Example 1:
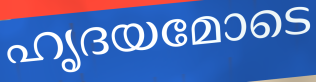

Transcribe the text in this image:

ഹൃദയമോടെ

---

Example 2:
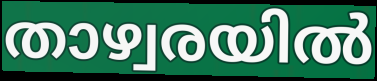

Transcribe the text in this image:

താഴ്വരയിൽ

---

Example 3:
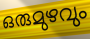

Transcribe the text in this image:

ഒരുമുഴവും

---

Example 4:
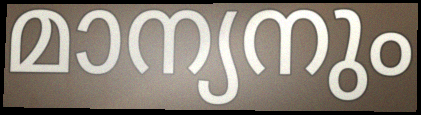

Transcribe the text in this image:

മാന്യനും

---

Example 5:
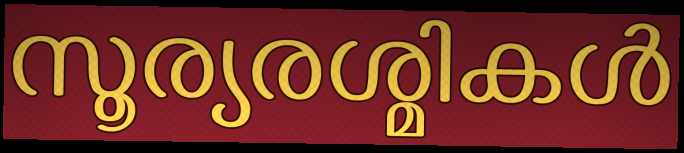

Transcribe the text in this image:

സൂര്യരശ്മികൾ